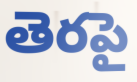
తెరపై